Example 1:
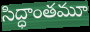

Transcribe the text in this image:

సిద్ధాంతమూ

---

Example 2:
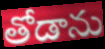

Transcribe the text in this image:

తోడాను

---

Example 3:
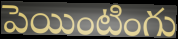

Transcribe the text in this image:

పెయింటింగు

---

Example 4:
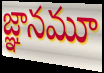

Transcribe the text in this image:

జ్ఞానమూ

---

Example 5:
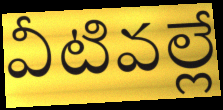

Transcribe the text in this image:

వీటివల్లే